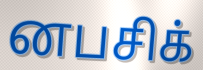
னபசிக்